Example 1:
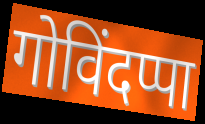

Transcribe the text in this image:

गोविंदप्पा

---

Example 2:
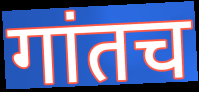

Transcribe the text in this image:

गांतच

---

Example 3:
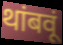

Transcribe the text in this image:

थांबवूं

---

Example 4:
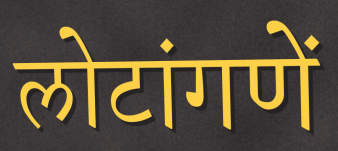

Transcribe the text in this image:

लोटांगणें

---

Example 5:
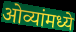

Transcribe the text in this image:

ओव्यांमध्ये